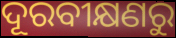
ଦୂରବୀକ୍ଷଣରୁ